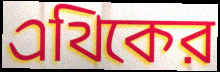
এথিকের